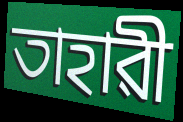
তাহাৱী